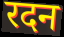
रदन